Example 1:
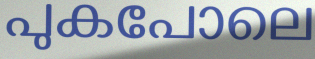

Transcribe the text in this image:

പുകപോലെ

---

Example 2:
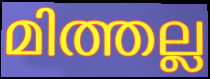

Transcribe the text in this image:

മിത്തല്ല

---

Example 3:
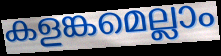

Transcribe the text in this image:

കളങ്കമെല്ലാം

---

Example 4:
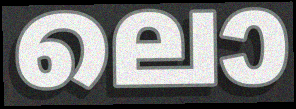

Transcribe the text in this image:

ലൊ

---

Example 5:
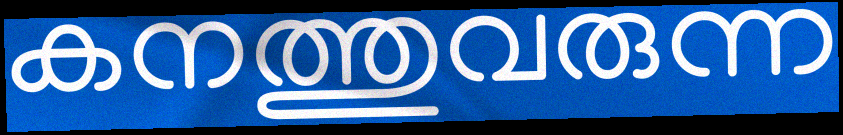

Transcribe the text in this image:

കനത്തുവരുന്ന